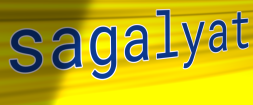
sagalyat